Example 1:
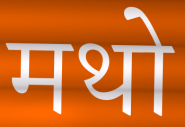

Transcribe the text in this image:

मथो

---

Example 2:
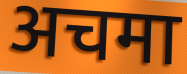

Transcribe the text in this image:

अचमा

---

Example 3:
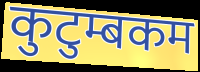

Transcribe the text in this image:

कुटुम्बकम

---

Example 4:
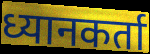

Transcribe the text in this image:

ध्यानकर्ता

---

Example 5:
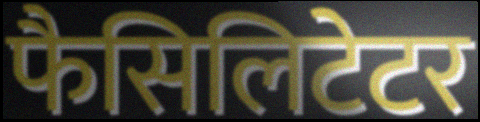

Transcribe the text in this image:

फैसिलिटेटर